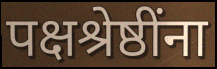
पक्षश्रेष्ठींना